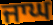
ਜਾਘ